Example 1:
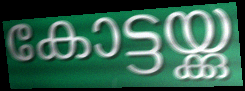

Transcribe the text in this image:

കോട്ടയ്ക്കു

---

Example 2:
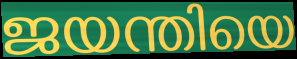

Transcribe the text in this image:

ജയന്തിയെ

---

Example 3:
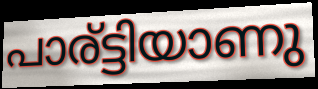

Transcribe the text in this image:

പാര്ട്ടിയാണു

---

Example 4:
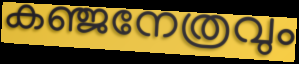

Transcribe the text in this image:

കഞ്ജനേത്രവും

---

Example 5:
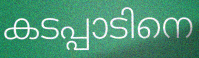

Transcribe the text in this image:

കടപ്പാടിനെ